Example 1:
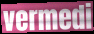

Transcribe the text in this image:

vermedi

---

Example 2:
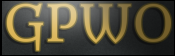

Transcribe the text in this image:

GPWO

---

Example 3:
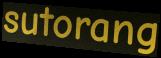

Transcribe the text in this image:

sutorang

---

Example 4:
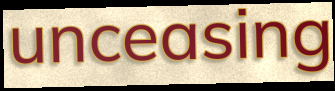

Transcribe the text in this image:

unceasing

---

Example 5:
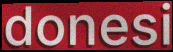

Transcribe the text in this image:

donesi